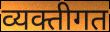
व्यक्तीगत